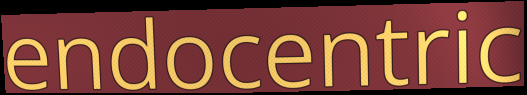
endocentric